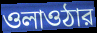
ওলাওঠার